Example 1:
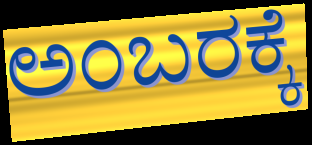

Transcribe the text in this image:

ಅಂಬರಕ್ಕೆ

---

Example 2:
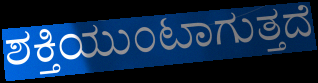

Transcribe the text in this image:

ಶಕ್ತಿಯುಂಟಾಗುತ್ತದೆ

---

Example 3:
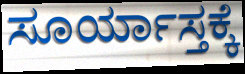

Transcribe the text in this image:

ಸೂರ್ಯಾಸ್ತಕ್ಕೆ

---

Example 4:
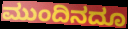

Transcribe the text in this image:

ಮುಂದಿನದೂ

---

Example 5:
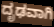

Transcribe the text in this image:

ದೃಢವಾಗಿ